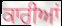
ਕਾਰੀਆਂ